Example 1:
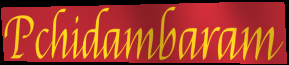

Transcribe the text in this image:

Pchidambaram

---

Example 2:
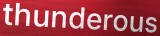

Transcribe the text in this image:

thunderous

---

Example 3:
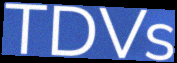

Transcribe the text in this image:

TDVs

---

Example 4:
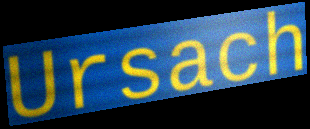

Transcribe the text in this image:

Ursach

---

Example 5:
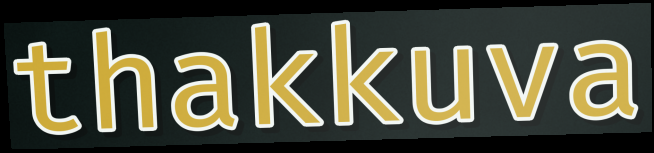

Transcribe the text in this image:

thakkuva